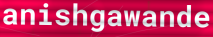
anishgawande